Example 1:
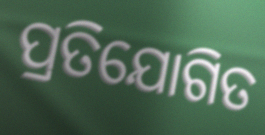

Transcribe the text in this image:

ପ୍ରତିଯୋଗିତ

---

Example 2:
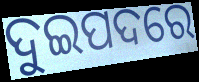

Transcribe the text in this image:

ଦୁଇପଦରେ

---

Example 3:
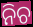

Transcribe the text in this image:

ନିଚ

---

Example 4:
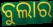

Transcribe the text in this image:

ବୁଲାର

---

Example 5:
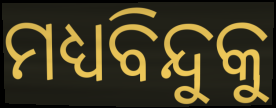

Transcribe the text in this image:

ମଧ୍ୟବିନ୍ଦୁକୁ